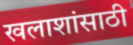
खलाशांसाठी